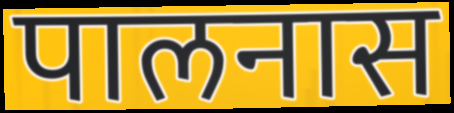
पालनास